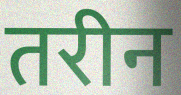
तरीन